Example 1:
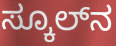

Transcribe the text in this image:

ಸ್ಕೂಲ್‌ನ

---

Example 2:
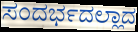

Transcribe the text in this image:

ಸಂದರ್ಭದಲ್ಲಾದ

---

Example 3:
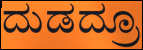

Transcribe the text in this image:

ದುಡದ್ರೂ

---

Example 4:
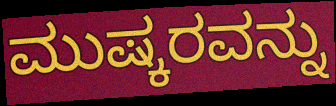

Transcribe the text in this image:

ಮುಷ್ಕರವನ್ನು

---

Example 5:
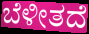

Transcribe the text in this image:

ಬೆಳೀತದೆ